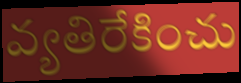
వ్యతిరేకించు